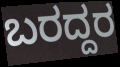
ಬರದ್ದರ